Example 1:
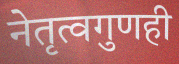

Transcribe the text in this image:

नेतृत्वगुणही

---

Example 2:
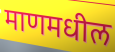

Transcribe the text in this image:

माणमधील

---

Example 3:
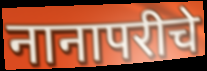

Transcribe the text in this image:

नानापरीचे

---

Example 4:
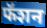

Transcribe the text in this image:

फॅशन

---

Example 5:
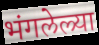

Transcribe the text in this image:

भंगलेल्या